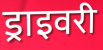
ड्राइवरी